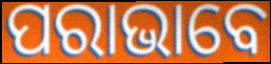
ପରାଭାବେ